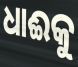
ଧାଈକୁ